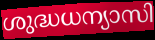
ശുദ്ധധന്യാസി